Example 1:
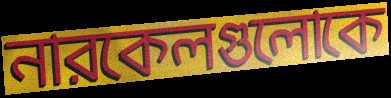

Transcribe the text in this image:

নারকেলগুলোকে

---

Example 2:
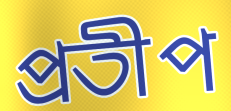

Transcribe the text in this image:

প্রতীপ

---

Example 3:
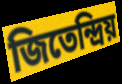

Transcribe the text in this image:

জিতেন্দ্রিয়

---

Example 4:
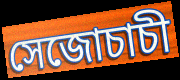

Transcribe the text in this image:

সেজোচাচী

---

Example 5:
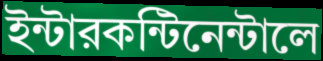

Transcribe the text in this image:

ইন্টারকন্টিনেন্টালে